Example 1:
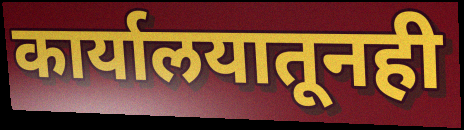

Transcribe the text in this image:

कार्यालयातूनही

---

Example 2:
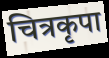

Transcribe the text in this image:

चित्रकृपा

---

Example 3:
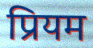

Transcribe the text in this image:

प्रियम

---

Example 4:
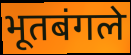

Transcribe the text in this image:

भूतबंगले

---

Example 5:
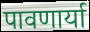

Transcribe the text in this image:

पावणार्या